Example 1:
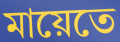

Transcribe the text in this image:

মায়েতে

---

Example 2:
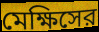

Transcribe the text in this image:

মেক্ষিসের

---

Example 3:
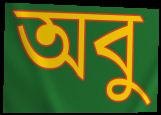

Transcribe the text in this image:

অবু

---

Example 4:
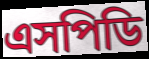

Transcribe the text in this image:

এসপিডি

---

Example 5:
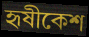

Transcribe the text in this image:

হৃষীকেশ